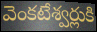
వెంకటేశ్వర్లుకి